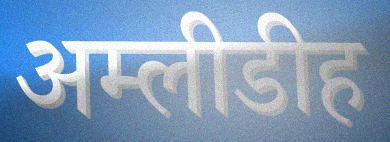
अम्लीडीह